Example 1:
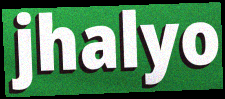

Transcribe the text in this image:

jhalyo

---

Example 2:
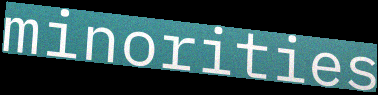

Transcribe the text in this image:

minorities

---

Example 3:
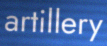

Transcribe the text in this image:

artillery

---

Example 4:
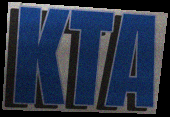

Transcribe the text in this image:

KTA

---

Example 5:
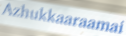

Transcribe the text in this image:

Azhukkaaraamai